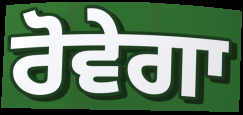
ਰੋਵੇਗਾ